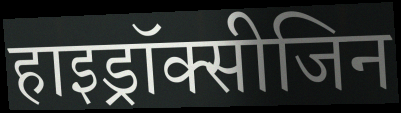
हाइड्रॉक्सीजिन